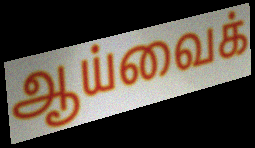
ஆய்வைக்